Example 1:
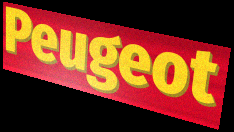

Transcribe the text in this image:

Peugeot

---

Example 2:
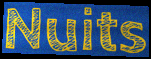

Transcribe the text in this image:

Nuits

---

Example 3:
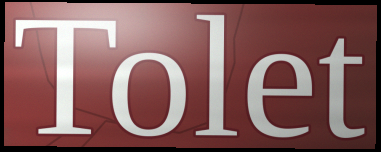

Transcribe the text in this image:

Tolet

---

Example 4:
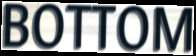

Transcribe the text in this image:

BOTTOM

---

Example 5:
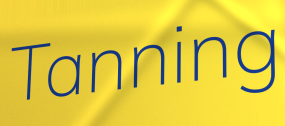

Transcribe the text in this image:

Tanning